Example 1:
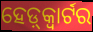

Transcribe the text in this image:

ହେଡ଼୍‌କ୍ୱାର୍ଟର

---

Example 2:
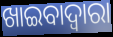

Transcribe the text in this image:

ଖାଇବାଦ୍ଵାରା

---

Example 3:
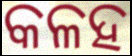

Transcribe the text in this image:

କଳହ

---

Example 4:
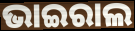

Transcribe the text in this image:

ଭାଇରାଲ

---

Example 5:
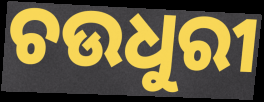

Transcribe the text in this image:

ଚଉଧୁରୀ